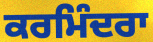
ਕਰਮਿੰਦਰਾ